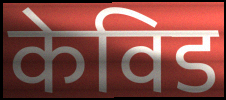
केविड